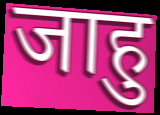
जाहु